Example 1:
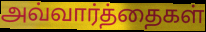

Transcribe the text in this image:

அவ்வார்த்தைகள்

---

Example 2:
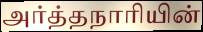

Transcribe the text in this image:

அர்த்தநாரியின்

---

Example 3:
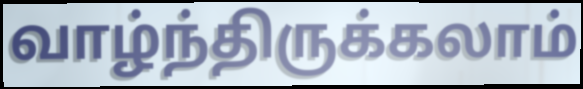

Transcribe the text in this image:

வாழ்ந்திருக்கலாம்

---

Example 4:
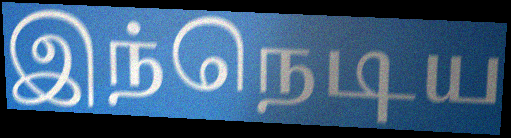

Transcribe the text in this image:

இந்நெடிய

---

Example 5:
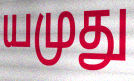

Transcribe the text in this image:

யமுது